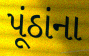
પૂંઠાંના